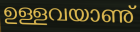
ഉള്ളവയാണു്